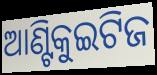
ଆଣ୍ଟିକୁଇଟିଜ